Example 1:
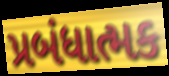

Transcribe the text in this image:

પ્રબંધાત્મક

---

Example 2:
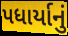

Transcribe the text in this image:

પધાર્યાનું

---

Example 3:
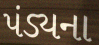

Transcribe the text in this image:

પંડ્યના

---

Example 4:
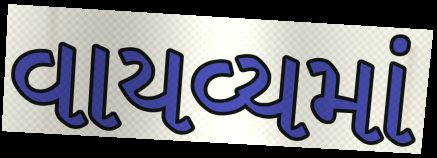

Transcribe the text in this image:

વાયવ્યમાં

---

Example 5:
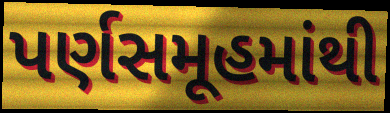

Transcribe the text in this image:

પર્ણસમૂહમાંથી